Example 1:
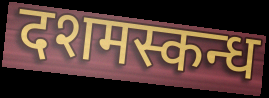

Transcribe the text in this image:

दशमस्कन्ध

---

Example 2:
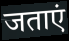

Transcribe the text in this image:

जताएं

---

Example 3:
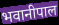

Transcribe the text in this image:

भवानीपाल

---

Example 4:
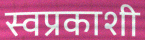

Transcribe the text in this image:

स्वप्रकाशी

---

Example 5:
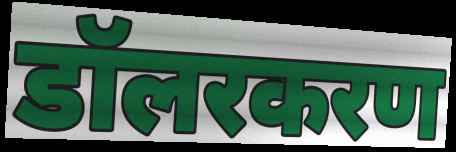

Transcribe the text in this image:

डॉलरकरण